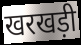
खरखड़ी